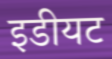
इडीयट